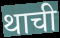
थाची